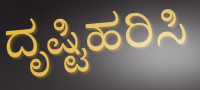
ದೃಷ್ಟಿಹರಿಸಿ